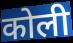
कोली